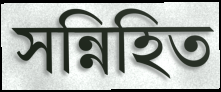
সন্নিহিত